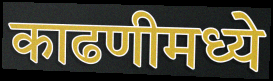
काढणीमध्ये